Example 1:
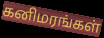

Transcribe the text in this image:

கனிமரங்கள்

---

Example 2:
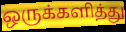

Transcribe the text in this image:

ஒருக்களித்து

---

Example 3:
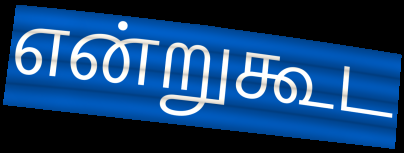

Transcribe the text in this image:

என்றுகூட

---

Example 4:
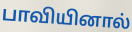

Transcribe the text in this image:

பாவியினால்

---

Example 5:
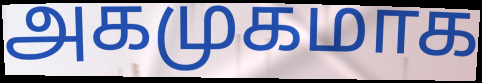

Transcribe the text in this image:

அகமுகமாக